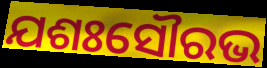
ଯଶଃସୌରଭ